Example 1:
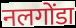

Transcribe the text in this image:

नलगोंडा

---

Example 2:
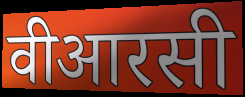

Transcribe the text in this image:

वीआरसी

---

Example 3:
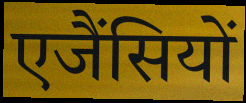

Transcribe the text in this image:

एजैंसियों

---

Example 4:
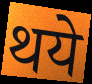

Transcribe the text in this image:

थये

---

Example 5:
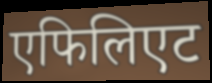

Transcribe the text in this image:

एफिलिएट